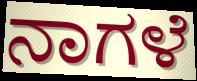
ನಾಗಳೆ